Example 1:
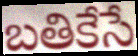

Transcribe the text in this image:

బతికేసే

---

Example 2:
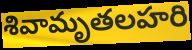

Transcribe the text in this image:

శివామృతలహరి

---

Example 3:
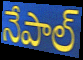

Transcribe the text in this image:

నేపాల్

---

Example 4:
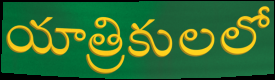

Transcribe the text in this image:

యాత్రికులలో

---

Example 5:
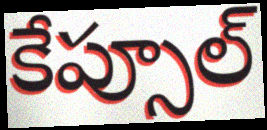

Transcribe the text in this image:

కేప్సూల్